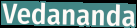
Vedananda